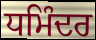
ਧਮਿੰਦਰ